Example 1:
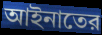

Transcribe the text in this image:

আইনাতের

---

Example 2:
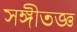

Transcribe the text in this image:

সঙ্গীতজ্ঞ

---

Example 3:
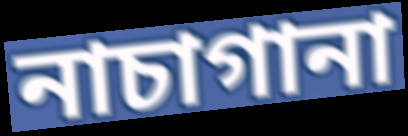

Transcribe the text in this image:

নাচাগানা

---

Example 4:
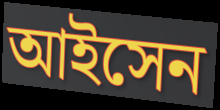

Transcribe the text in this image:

আইসেন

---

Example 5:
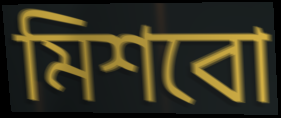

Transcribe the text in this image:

মিশবো